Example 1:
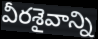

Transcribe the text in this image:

వీరశైవాన్ని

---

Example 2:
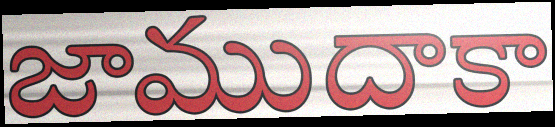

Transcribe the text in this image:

జాముదాకా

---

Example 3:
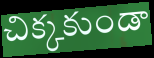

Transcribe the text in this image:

చిక్కకుండా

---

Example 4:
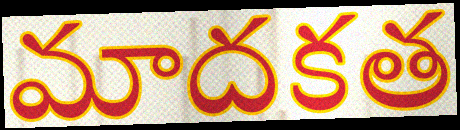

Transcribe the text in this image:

మాదకత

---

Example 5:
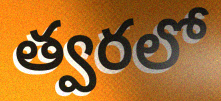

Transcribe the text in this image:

త్వరలో